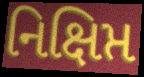
નિક્ષિપ્ત